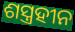
ଶସ୍ତ୍ରହୀନ